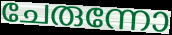
ചേരുന്നോ